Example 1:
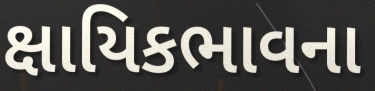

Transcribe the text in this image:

ક્ષાયિકભાવના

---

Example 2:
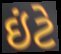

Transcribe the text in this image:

ઇંટે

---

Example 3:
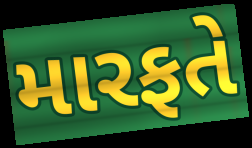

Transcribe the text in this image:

મારફતે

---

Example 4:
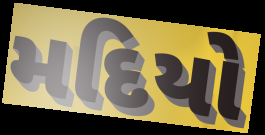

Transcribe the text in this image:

મદિયો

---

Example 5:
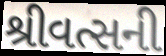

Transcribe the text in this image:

શ્રીવત્સની